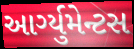
આર્ગ્યુમેન્ટસ